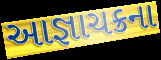
આજ્ઞાચક્રના